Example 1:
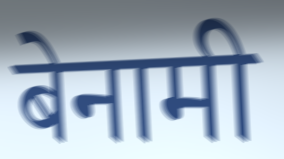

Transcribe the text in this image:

बेनामी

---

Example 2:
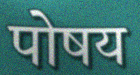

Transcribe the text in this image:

पोषय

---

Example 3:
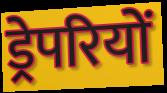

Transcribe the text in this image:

ड्रेपरियों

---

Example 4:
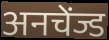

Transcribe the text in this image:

अनचेंज्ड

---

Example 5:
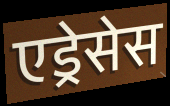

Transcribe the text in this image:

एड्रेसेस